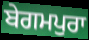
ਬੇਗਮਪੁਰਾ